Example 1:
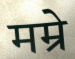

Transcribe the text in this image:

मम्रे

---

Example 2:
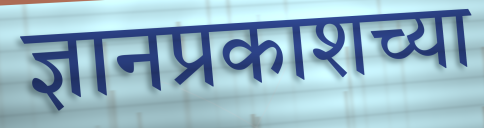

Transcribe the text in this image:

ज्ञानप्रकाशच्या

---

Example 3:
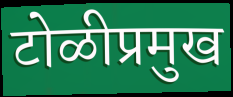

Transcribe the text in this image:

टोळीप्रमुख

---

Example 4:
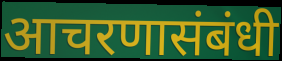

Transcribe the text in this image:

आचरणासंबंधी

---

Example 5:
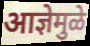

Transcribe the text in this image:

आज्ञेमुळे